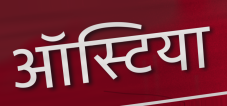
ऑस्टिया